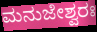
ಮನುಜೇಶ್ವರಃ